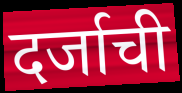
दर्जाची